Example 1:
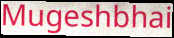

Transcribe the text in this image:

Mugeshbhai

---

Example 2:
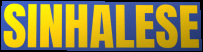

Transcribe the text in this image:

SINHALESE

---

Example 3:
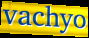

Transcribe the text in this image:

vachyo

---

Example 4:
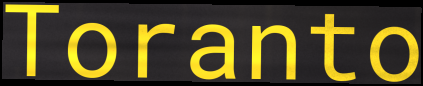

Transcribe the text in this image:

Toranto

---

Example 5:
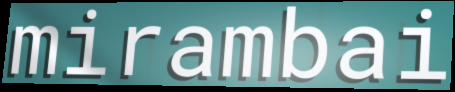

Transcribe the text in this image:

mirambai